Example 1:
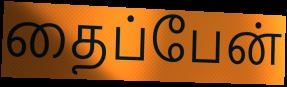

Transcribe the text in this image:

தைப்பேன்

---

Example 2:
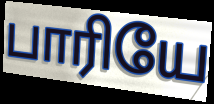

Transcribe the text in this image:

பாரியே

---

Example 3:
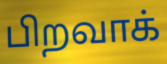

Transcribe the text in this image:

பிறவாக்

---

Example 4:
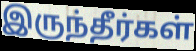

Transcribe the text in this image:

இருந்தீர்கள்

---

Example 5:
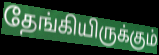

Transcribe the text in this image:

தேங்கியிருக்கும்